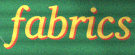
fabrics